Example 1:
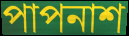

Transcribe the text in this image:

পাপনাশ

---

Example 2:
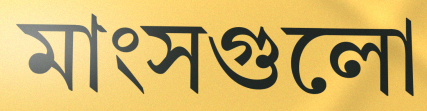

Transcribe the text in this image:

মাংসগুলো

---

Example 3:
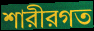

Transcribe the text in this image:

শারীরগত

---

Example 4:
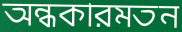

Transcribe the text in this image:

অন্ধকারমতন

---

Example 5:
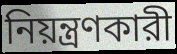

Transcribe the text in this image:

নিয়ন্ত্রণকারী